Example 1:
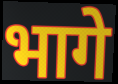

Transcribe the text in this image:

भागे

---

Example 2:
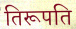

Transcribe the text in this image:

तिरूपति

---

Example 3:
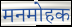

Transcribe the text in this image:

मनमोहक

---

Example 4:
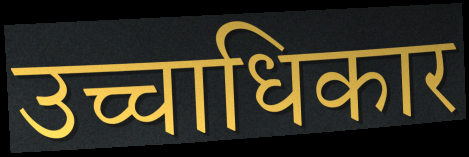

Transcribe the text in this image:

उच्‍चाधिकार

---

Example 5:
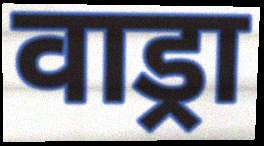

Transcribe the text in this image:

वाड्रा